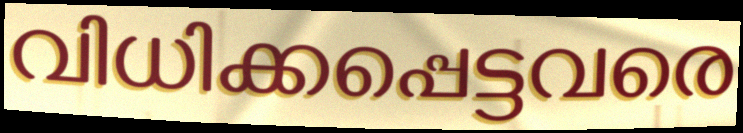
വിധിക്കപ്പെട്ടവരെ